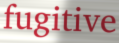
fugitive